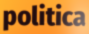
politica